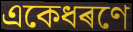
একেধৰণে